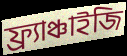
ফ্র্যাঞ্চাইজি